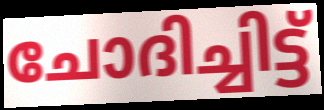
ചോദിച്ചിട്ട്